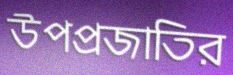
উপপ্রজাতির